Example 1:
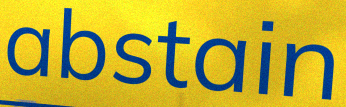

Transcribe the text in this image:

abstain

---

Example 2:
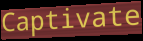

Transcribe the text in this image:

Captivate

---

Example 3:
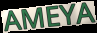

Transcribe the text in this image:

AMEYA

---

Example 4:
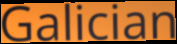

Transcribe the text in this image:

Galician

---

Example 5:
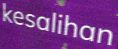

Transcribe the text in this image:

kesalihan